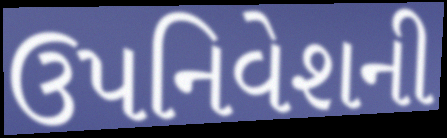
ઉપનિવેશની